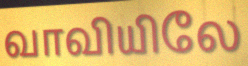
வாவியிலே